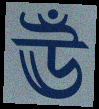
ঊঁ